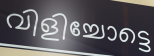
വിളിച്ചോട്ടെ